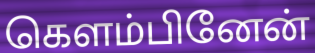
கெளம்பினேன்